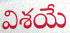
విశయే